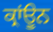
ਕ੍ਰਾਂਊਨ